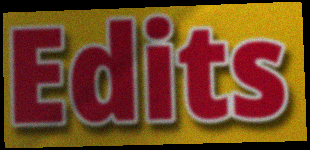
Edits